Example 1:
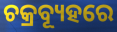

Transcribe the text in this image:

ଚକ୍ରବ୍ୟୂହରେ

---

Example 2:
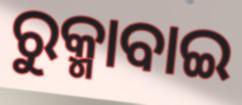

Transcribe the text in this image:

ରୁକ୍ମାବାଇ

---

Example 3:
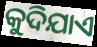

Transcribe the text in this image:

କୁଦିଯାଏ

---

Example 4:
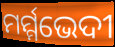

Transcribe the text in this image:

ମର୍ମ୍ମଭେଦୀ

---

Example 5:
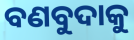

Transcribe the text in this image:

ବଣବୁଦାକୁ